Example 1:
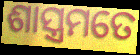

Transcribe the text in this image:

ଶାସ୍ତ୍ରମତେ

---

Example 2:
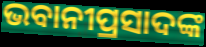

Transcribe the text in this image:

ଭବାନୀପ୍ରସାଦଙ୍କ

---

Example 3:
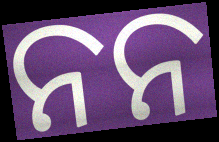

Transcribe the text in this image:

ନନ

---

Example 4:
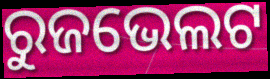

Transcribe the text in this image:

ରୁଜଭେଲଟ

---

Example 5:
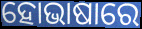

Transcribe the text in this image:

ହୋଭାଷାରେ